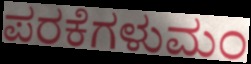
ಪರಕೆಗಳುಮಂ